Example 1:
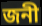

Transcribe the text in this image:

জনী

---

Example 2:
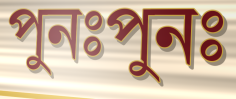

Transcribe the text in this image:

পুনঃপুনঃ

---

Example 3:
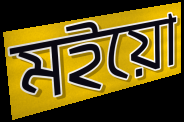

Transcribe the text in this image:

মইয়ো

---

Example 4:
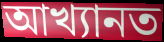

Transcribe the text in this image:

আখ্যানত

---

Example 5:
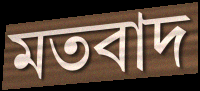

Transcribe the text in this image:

মতবাদ